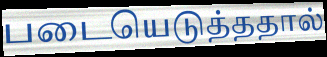
படையெடுத்ததால்